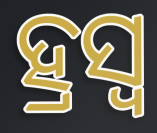
ହ୍ରସ୍ୱ